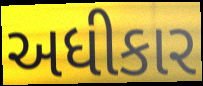
અધીકાર